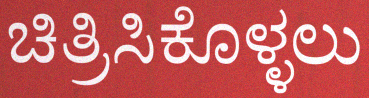
ಚಿತ್ರಿಸಿಕೊಳ್ಳಲು